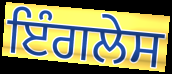
ਇੰਗਲੇਸ